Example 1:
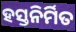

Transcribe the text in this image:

ହସ୍ତନିର୍ମିତ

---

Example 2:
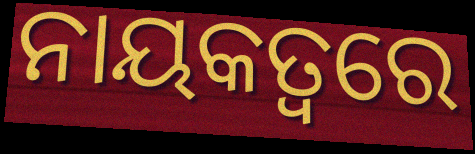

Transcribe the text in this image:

ନାୟକତ୍ବରେ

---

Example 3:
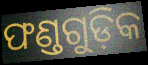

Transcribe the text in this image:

ଫଣ୍ଡଗୁଡ଼ିକ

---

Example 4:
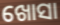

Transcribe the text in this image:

ଖୋସା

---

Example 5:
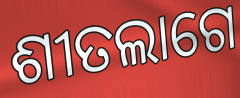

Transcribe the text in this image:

ଶୀତଲାଗେ